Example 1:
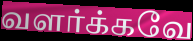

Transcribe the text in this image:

வளர்க்கவே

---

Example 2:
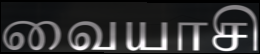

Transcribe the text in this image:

வையாசி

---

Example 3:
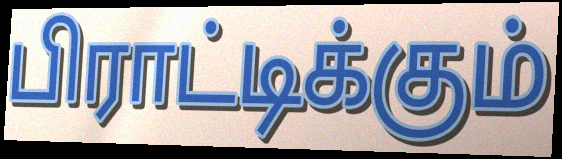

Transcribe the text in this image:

பிராட்டிக்கும்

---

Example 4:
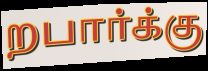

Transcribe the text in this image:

றபார்க்கு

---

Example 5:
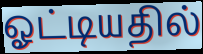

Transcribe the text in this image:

ஓட்டியதில்